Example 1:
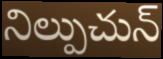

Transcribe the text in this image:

నిల్పుచున్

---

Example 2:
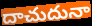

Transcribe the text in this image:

దాచుదునా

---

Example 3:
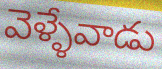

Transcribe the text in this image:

వెళ్ళేవాడు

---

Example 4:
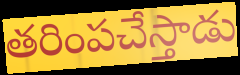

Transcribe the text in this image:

తరింపచేస్తాడు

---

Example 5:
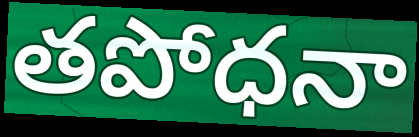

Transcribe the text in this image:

తపోధనా